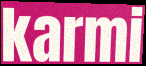
karmi